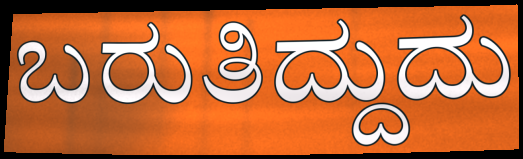
ಬರುತಿದ್ದುದು